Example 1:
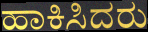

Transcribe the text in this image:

ಹಾಕಿಸಿದರು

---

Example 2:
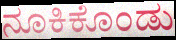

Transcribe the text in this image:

ನೂಕಿಕೊಂಡು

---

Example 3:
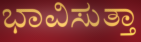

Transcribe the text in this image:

ಭಾವಿಸುತ್ತಾ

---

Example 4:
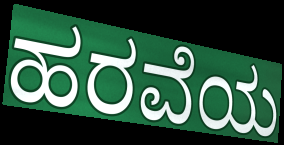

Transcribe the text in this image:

ಹರವೆಯ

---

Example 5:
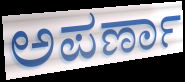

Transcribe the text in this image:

ಅಪರ್ಣಾ